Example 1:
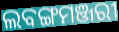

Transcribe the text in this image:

ଲବଙ୍ଗମଞ୍ଜରୀ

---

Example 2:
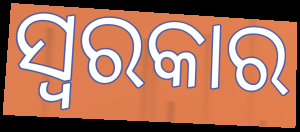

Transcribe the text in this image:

ସ୍ୱରକାର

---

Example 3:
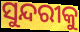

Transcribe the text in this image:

ସୁନ୍ଦରୀକୁ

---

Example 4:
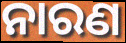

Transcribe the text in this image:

ନାରଣ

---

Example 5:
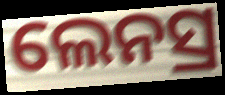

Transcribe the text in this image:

ଲେନସ୍ର